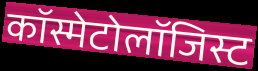
कॉस्मेटोलॉजिस्ट